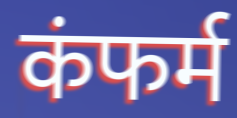
कंफर्म